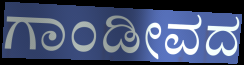
ಗಾಂಡೀವದ